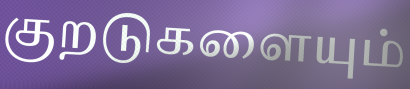
குறடுகளையும்